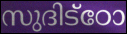
സുദിട്ഠോ